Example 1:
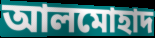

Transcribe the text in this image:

আলমোহাদ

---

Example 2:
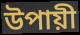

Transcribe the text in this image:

উপায়ী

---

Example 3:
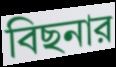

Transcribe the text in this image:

বিছনার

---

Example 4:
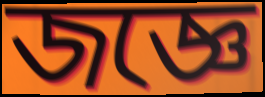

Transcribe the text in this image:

জজ্ঞে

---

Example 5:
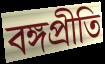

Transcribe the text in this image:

বঙ্গপ্রীতি